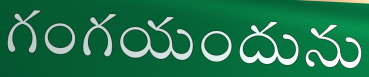
గంగయందును